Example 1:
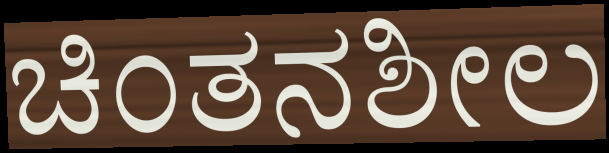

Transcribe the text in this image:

ಚಿಂತನಶೀಲ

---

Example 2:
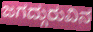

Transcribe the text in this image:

ಜಗದ್ಗುರುವಿನ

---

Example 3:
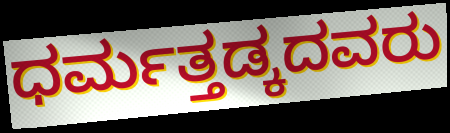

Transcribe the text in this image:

ಧರ್ಮತ್ತಡ್ಕದವರು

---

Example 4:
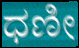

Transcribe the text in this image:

ಧಣೀ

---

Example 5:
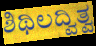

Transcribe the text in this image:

ಶಿಥಿಲದ್ವಿತ್ವ